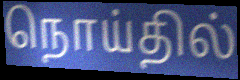
நொய்தில்